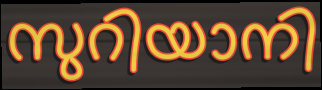
സുറിയാനി